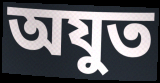
অযুত